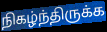
நிகழ்ந்திருக்க